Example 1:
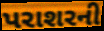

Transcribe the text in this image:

પરાશરની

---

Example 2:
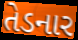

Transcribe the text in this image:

તેડનાર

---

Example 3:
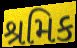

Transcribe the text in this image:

શ્રમિક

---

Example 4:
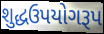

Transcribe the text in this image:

શુદ્ધઉપયોગરૂપ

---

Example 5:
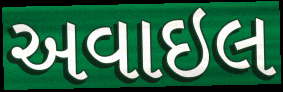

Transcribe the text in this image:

અવાઇલ